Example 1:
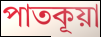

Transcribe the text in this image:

পাতকূয়া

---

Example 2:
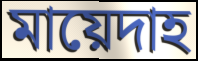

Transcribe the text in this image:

মায়েদাহ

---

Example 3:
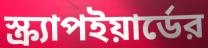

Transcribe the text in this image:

স্ক্র্যাপইয়ার্ডের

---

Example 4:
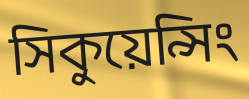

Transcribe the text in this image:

সিকুয়েন্সিং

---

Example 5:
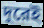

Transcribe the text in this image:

দুরেই